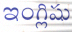
ఇంగ్లిషు